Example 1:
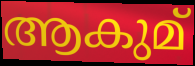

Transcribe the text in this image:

ആകുമ്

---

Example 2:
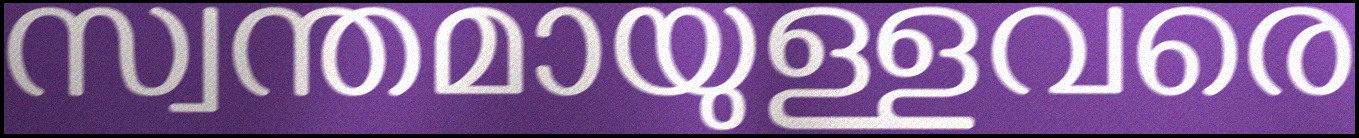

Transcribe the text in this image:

സ്വന്തമായുള്ളവരെ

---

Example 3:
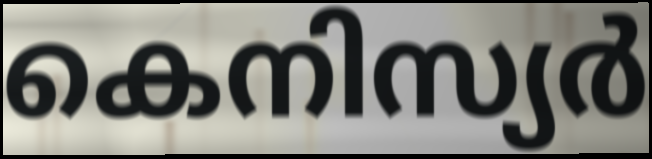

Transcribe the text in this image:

കെനിസ്യർ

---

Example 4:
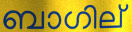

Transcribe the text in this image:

ബാഗില്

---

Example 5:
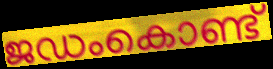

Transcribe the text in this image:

ജഡംകൊണ്ട്